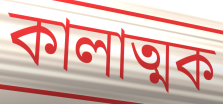
কালাত্মক